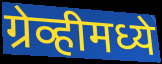
ग्रेव्हीमध्ये